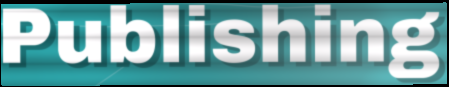
Publishing